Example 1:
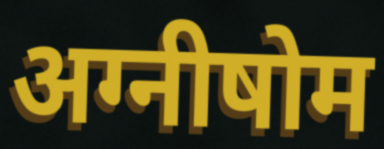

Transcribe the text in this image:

अग्नीषोम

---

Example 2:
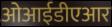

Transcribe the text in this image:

ओआईडीएआर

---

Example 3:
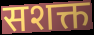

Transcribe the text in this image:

सशक्त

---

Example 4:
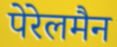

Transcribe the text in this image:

पेरेलमैन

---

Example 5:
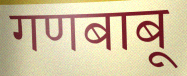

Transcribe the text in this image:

गणबाबू